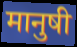
मानुषी